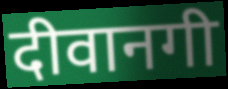
दीवानगी